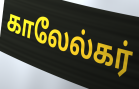
காலேல்கர்